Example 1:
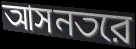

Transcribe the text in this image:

আসনতরে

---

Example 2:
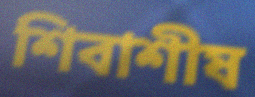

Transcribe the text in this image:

শিবাশীষ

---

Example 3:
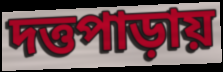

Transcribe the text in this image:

দত্তপাড়ায়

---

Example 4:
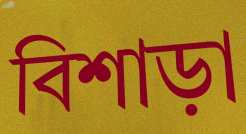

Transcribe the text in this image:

বিশাড়া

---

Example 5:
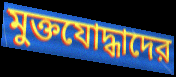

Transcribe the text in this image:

মুক্তযোদ্ধাদের